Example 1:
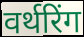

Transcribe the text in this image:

वर्थरिंग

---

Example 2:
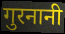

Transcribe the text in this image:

गुरनानी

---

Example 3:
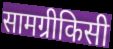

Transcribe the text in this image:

सामग्रीकिसी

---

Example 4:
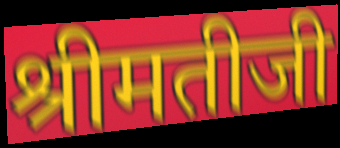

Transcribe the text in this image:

श्रीमतीजी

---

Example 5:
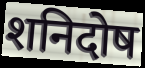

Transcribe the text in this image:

शनिदोष